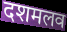
दशमलव